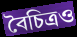
বৈচিত্রও